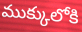
ముక్కులోకి